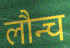
लौन्च